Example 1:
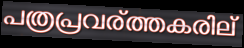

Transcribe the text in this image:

പത്രപ്രവര്ത്തകരില്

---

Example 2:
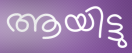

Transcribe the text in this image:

ആയിട്ടു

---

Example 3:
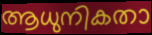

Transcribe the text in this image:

ആധുനികതാ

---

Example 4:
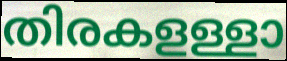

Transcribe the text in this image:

തിരകളള്ളാ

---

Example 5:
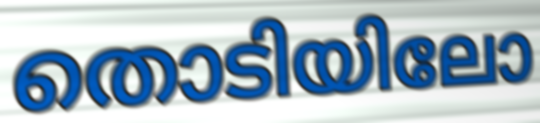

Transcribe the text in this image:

തൊടിയിലോ